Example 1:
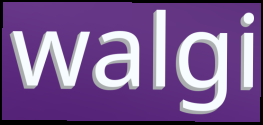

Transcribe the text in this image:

walgi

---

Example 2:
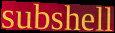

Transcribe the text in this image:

subshell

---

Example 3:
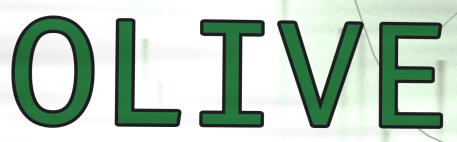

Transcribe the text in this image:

OLIVE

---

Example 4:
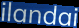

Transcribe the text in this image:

ilandai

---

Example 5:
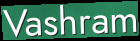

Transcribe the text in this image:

Vashram